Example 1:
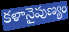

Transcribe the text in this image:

కళానైపుణ్యం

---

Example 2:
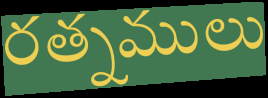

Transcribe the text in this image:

రత్నములు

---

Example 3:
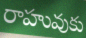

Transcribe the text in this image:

రాహువుకు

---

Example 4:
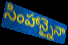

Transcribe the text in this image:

సింహాన్నైనా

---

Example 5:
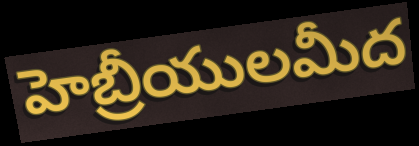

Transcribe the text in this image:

హెబ్రీయులమీద